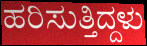
ಹರಿಸುತ್ತಿದ್ದಳು